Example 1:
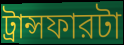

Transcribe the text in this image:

ট্রান্সফারটা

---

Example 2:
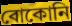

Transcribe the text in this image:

বোকোনি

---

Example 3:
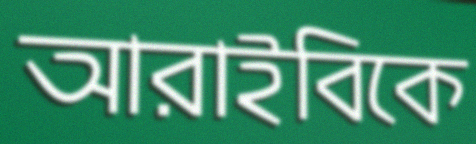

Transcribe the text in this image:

আরাইবিকে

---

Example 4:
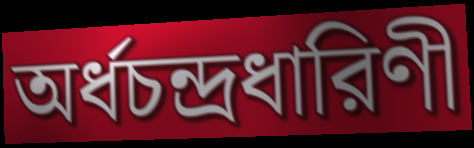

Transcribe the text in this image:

অর্ধচন্দ্রধারিণী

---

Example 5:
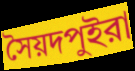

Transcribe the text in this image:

সৈয়দপুইরা